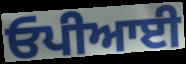
ਓਪੀਆਈ